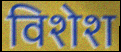
विशेश